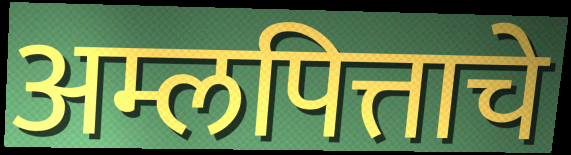
अम्लपित्ताचे